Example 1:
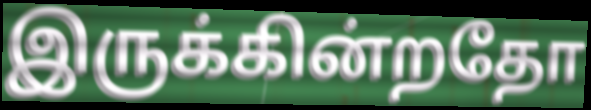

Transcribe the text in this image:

இருக்கின்றதோ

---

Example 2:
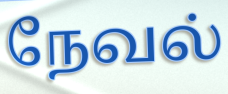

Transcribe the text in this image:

நேவல்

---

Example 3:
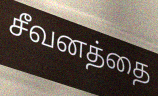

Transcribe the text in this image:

சீவனத்தை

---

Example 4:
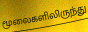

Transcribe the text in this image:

மூலைகளிலிருந்து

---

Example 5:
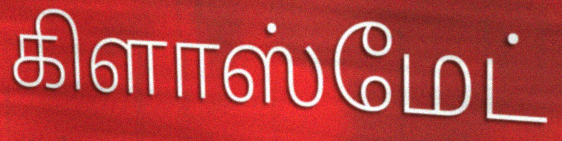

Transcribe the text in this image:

கிளாஸ்மேட்